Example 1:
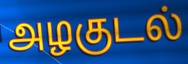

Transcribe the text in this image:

அழகுடல்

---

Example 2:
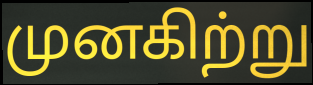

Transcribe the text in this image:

முனகிற்று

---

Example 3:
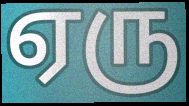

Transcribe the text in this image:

ஏரு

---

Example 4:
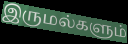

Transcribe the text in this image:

இருமல்களும்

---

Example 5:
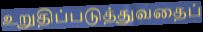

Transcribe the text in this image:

உறுதிப்படுத்துவதைப்